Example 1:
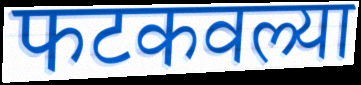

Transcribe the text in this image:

फटकवल्या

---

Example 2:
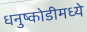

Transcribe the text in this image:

धनुष्कोडीमध्ये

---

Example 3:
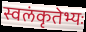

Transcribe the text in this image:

स्वलंकृतेभ्यः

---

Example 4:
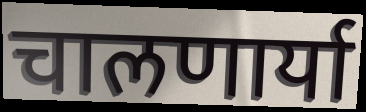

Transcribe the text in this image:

चालणार्या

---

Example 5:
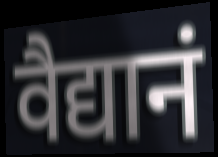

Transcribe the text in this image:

वैद्यानं